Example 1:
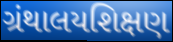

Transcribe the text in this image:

ગ્રંથાલયશિક્ષણ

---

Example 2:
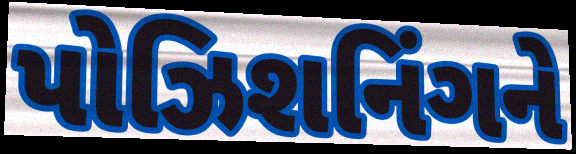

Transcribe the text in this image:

પોઝિશનિંગને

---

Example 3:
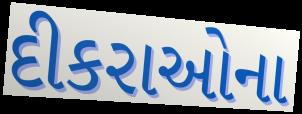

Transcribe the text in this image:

દીકરાઓના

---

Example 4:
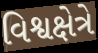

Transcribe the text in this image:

વિશ્વક્ષેત્રે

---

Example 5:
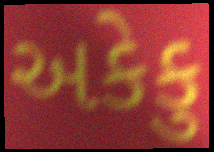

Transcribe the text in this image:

અકેકુ